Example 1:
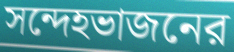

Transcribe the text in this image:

সন্দেহভাজনের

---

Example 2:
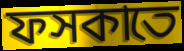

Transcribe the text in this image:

ফসকাতে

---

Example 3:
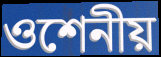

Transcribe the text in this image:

ওশেনীয়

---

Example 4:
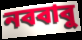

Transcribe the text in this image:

নববাবু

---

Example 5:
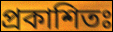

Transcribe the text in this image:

প্রকাশিতঃ